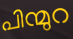
പിന്മുറ